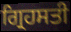
ਗ੍ਰਿਹਸਤੀ